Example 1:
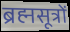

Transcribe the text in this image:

ब्रह्मसूत्रों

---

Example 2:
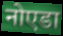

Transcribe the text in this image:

नोएडा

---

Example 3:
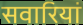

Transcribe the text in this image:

सवारियां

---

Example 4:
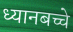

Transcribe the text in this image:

ध्यानबच्चे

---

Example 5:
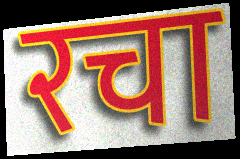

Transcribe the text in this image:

रचा